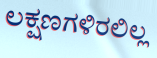
ಲಕ್ಷಣಗಳಿರಲಿಲ್ಲ